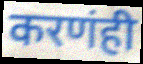
करणंही